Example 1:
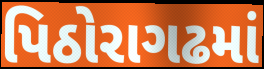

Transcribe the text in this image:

પિઠોરાગઢમાં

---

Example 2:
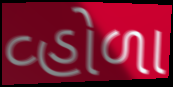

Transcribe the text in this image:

વ્હોળા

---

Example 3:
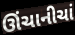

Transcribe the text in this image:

ઊંચાનીચાં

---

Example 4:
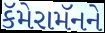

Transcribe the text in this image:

કૅમેરામૅનને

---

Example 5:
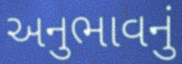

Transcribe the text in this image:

અનુભાવનું